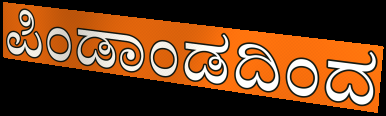
ಪಿಂಡಾಂಡದಿಂದ